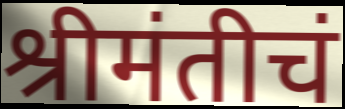
श्रीमंतीचं